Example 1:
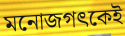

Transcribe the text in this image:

মনোজগৎকেই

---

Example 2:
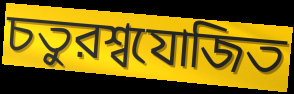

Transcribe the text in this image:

চতুরশ্বযোজিত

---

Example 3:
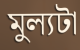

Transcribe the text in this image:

মুল্যটা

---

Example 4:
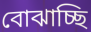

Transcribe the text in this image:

বোঝাচ্ছি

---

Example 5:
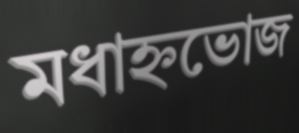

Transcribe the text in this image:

মধাহ্নভোজ